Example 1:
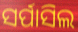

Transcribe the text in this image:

ସର୍ପାସିଲ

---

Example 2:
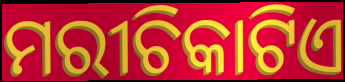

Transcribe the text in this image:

ମରୀଚିକାଟିଏ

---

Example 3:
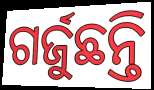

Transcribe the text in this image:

ଗର୍ଜୁଛନ୍ତି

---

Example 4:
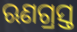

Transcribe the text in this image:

ଋଣଗ୍ରସ୍ତ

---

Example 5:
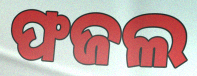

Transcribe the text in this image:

ଫଜଲ